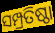
ସମ୍ପ୍ରତିଷ୍ଠା